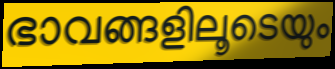
ഭാവങ്ങളിലൂടെയും